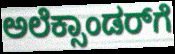
ಅಲೆಕ್ಸಾಂಡರ್‌ಗೆ